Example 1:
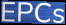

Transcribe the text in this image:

EPCs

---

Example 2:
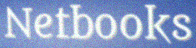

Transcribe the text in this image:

Netbooks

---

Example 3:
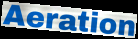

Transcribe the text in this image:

Aeration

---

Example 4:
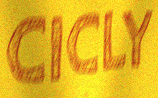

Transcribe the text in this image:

CICLY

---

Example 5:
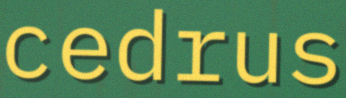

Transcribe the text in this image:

cedrus